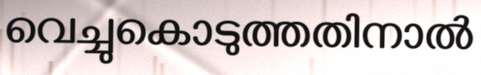
വെച്ചുകൊടുത്തതിനാൽ